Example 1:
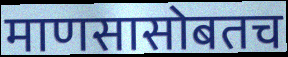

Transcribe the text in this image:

माणसासोबतच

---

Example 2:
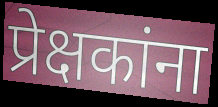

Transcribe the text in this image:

प्रेक्षकांना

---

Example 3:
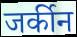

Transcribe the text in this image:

जर्कीन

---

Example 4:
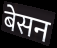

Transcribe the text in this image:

बेसन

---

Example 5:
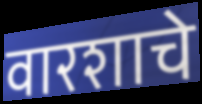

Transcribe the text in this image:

वारशाचे